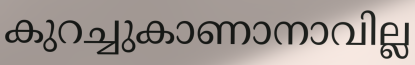
കുറച്ചുകാണാനാവില്ല